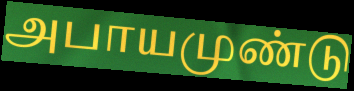
அபாயமுண்டு